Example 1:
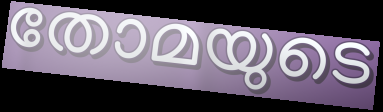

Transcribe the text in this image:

തോമയുടെ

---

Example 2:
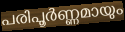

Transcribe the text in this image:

പരിപൂർണ്ണമായും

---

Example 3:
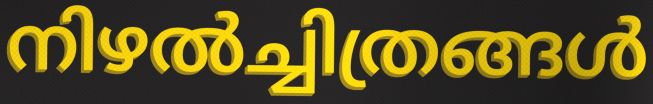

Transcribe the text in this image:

നിഴൽച്ചിത്രങ്ങൾ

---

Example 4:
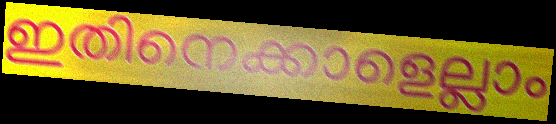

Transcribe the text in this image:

ഇതിനെക്കാളെല്ലാം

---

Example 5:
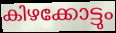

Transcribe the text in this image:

കിഴക്കോട്ടും